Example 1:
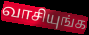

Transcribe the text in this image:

வாசியுங்க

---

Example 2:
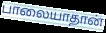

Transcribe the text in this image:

பாலையாதான்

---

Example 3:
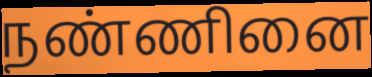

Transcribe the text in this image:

நண்ணினை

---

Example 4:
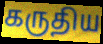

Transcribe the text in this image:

கருதிய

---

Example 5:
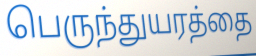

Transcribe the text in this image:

பெருந்துயரத்தை